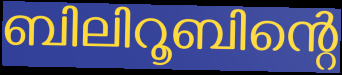
ബിലിറൂബിന്റെ